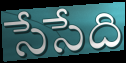
సేసేది